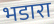
भडारा